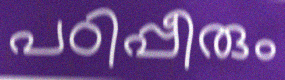
പഠിപ്പീരും